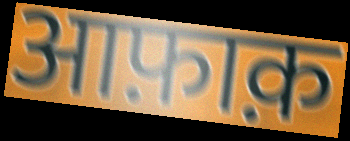
आफ़ाक़